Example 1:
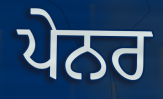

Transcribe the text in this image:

ਪੇਨਰ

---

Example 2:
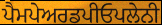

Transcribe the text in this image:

ਪੈਮਪੇਅਰਡਪੀਓਪਲੇਨੀ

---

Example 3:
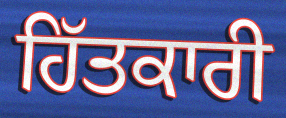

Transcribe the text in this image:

ਹਿੱਤਕਾਰੀ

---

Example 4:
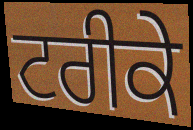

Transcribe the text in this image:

ਟਰੀਕੇ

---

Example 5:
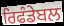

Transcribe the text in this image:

ਰਿਫੰਡੇਬਲ